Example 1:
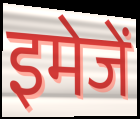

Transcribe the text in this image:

इमेजें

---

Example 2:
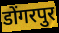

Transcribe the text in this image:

डोंगरपुर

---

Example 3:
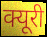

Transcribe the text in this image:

क्यूरी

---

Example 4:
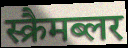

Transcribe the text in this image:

स्क्रैमब्लर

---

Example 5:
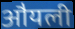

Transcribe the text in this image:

औयली